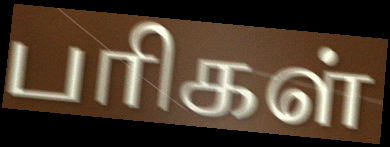
பரிகள்